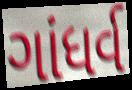
ગાંધર્વ